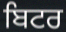
ਬਿਟਰ